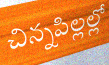
చిన్నపిల్లల్లో